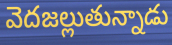
వెదజల్లుతున్నాడు